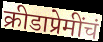
क्रीडाप्रेमींचं